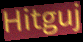
Hitguj